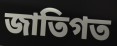
জাতিগত